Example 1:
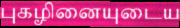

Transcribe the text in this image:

புகழினையுடைய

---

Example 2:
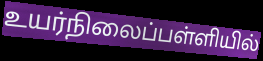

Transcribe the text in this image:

உயர்நிலைப்பள்ளியில்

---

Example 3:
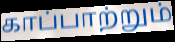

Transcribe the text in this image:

காப்பாற்றும்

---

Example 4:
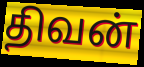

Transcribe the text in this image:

திவன்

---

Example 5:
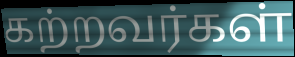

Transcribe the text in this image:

கற்றவர்கள்